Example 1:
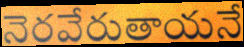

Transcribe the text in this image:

నెరవేరుతాయనే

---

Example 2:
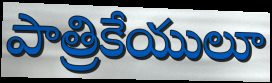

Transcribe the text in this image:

పాత్రికేయులూ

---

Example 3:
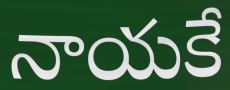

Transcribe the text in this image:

నాయకే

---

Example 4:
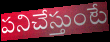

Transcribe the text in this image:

పనిచేస్తుంటే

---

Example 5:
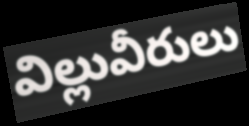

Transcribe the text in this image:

విల్లువీరులు